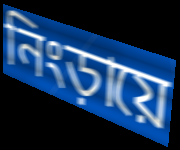
নিংড়ায়ে